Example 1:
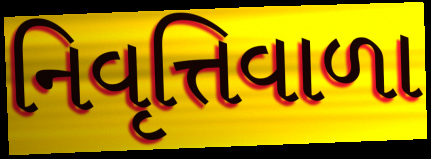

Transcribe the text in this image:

નિવૃત્તિવાળા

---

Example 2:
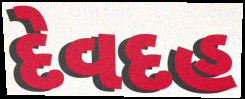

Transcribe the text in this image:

દેવદહ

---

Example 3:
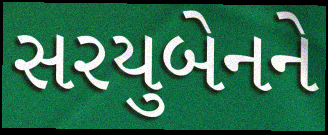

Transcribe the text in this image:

સરયુબેનને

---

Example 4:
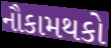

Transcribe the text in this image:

નૌકામથકો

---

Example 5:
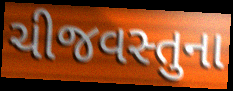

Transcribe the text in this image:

ચીજવસ્તુના